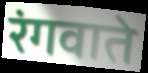
रंगवाते